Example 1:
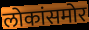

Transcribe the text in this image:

लोकांसमोर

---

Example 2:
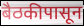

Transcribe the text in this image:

बैठकीपासून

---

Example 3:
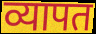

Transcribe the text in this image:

व्यापत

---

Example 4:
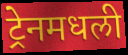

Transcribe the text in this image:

ट्रेनमधली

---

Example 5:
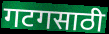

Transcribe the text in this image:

गटगसाठी